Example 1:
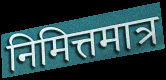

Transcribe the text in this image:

निमित्तमात्र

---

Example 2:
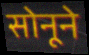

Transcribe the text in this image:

सोनूने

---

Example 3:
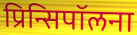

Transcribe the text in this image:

प्रिन्सिपॉलना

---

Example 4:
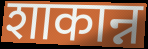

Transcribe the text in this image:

शाकान्न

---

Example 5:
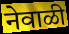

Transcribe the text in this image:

नेवाळी